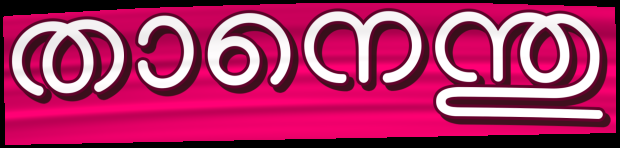
താനെന്തു